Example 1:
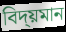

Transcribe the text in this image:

বিদ্য়মান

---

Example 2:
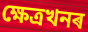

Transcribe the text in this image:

ক্ষেত্ৰখনৰ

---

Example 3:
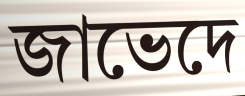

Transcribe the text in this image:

জাভেদে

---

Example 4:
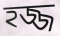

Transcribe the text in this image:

হজ্জ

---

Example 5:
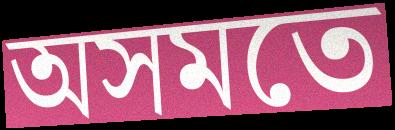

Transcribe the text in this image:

অসমতে